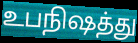
உபநிஷத்து